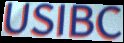
USIBC